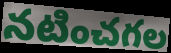
నటించగల